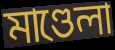
মাণ্ডেলা